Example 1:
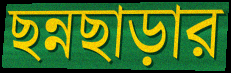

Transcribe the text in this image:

ছন্নছাড়ার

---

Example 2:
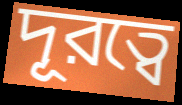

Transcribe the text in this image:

দূরত্বে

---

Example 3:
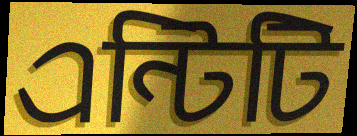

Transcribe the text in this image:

এন্টিটি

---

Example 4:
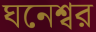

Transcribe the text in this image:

ঘনেশ্বর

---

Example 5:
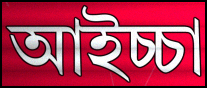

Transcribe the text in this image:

আইচ্চা